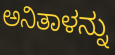
ಅನಿತಾಳನ್ನು